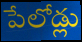
పేలోడ్లు